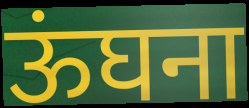
ऊंघना